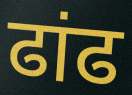
ढांढ